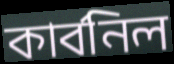
কার্বনিল